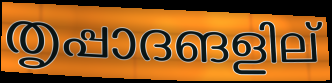
തൃപ്പാദങളില്